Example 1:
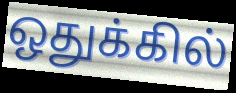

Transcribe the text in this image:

ஒதுக்கில்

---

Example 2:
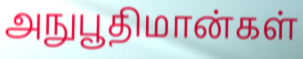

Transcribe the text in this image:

அநுபூதிமான்கள்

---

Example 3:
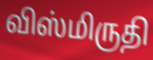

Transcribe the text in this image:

விஸ்மிருதி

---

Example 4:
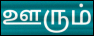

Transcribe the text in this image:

ஊரும்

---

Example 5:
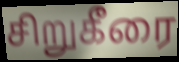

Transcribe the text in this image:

சிறுகீரை